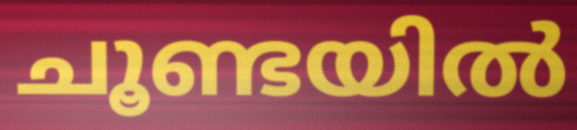
ചൂണ്ടയിൽ